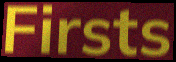
Firsts